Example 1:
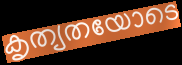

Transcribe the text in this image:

കൃത്യതയോടെ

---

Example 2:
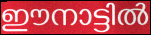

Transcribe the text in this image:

ഈനാട്ടിൽ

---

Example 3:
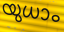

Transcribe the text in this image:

യുധാം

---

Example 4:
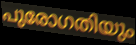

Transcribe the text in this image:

പുരോഗതിയും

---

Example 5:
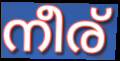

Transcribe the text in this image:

നീര്